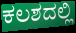
ಕಲಶದಲ್ಲಿ